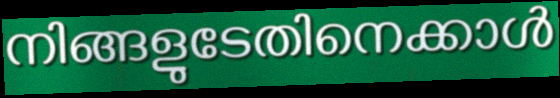
നിങ്ങളുടേതിനെക്കാൾ